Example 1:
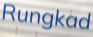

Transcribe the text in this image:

Rungkad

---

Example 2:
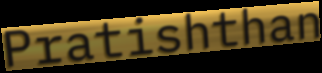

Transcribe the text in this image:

Pratishthan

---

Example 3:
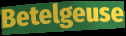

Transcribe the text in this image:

Betelgeuse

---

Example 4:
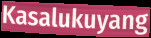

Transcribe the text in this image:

Kasalukuyang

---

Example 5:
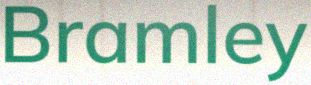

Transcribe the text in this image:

Bramley